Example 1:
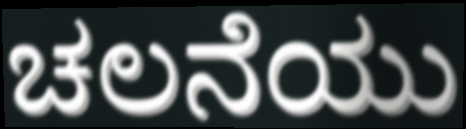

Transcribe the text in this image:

ಚಲನೆಯು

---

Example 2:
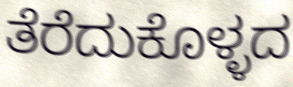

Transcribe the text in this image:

ತೆರೆದುಕೊಳ್ಳದ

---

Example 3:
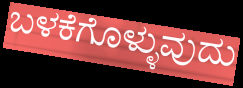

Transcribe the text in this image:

ಬಳಕೆಗೊಳ್ಳುವುದು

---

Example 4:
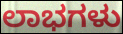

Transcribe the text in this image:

ಲಾಭಗಳು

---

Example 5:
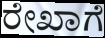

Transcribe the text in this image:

ರೇಖಾಗೆ